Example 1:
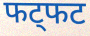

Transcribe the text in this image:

फट्फट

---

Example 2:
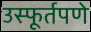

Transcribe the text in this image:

उस्फूर्तपणे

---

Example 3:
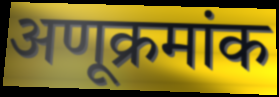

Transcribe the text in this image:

अणूक्रमांक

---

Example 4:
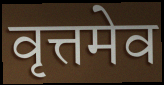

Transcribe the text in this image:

वृत्तमेव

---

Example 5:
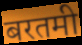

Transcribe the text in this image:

बरतमी